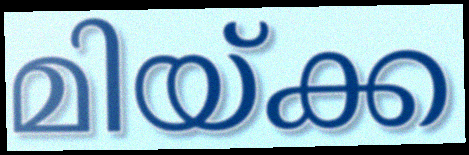
മിയ്ക്ക